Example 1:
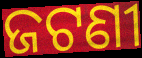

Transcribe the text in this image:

ଜଟଣୀ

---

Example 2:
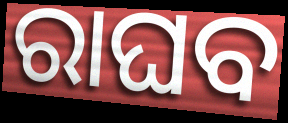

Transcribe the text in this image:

ରାଘବ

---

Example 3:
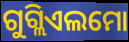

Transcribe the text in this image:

ଗୁଗ୍ଲିଏଲମୋ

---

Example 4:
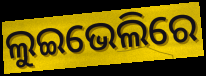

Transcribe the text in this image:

ଲୁଇଭେଲିରେ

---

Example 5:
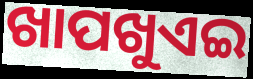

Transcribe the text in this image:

ଖାପଖୁଏଇ